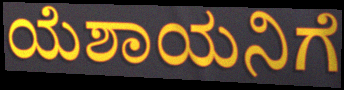
ಯೆಶಾಯನಿಗೆ